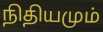
நிதியமும்